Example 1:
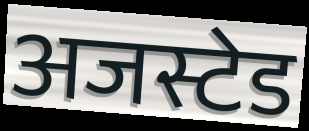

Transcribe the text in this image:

अजस्टेड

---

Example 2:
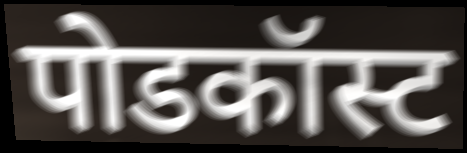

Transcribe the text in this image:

पोडकॉस्ट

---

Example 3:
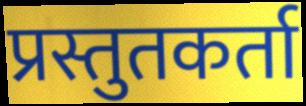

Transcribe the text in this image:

प्रस्तुतकर्ता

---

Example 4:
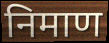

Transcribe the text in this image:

निमाण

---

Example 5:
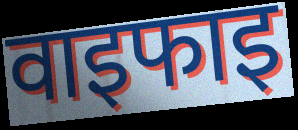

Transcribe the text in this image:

वाइफाइ